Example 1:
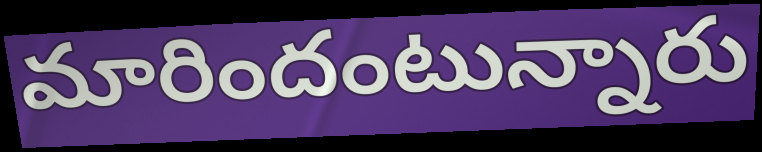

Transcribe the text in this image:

మారిందంటున్నారు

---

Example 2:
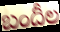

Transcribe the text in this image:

బందీల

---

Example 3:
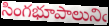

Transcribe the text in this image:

సింగభూపాలునిఁ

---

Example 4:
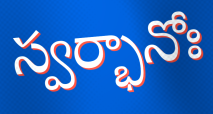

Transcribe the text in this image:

స్వర్భానోః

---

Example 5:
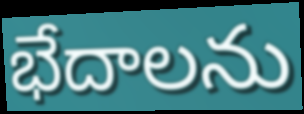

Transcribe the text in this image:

భేదాలను